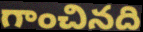
గాంచినది